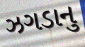
ઝગડાનુ